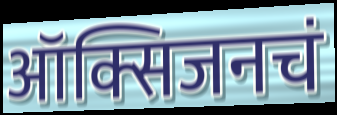
ऑक्सिजनचं